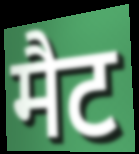
मैट